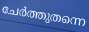
ചേർത്തുതന്നെ